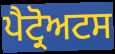
ਪੈਟ੍ਰੋਅਟਸ